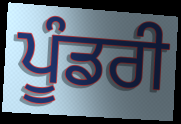
ਪੂੰਡਰੀ